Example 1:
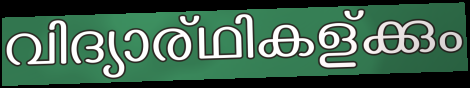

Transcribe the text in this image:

വിദ്യാര്ഥികള്ക്കും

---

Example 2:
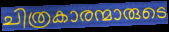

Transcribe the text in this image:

ചിത്രകാരന്മാരുടെ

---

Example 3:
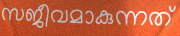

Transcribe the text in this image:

സജീവമാകുന്നത്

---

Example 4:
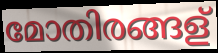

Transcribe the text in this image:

മോതിരങ്ങള്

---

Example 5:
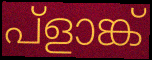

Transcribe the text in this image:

പ്ളാങ്ക്